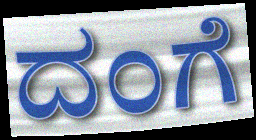
ದಂಗೆ